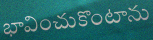
భావించుకొంటాను